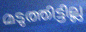
മടുത്തിട്ടില്ല